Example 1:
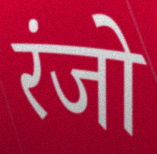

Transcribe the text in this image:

रंजो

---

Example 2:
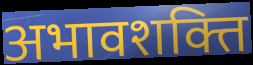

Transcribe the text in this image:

अभावशक्ति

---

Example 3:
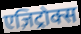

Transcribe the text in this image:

एज़िट्रोक्स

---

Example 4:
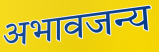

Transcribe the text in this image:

अभावजन्य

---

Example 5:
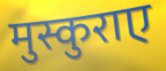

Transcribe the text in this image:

मुस्कुराए